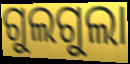
ଗୁଲଗୁଲା